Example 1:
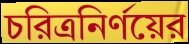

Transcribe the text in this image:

চরিত্রনির্ণয়ের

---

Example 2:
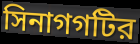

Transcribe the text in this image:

সিনাগগটির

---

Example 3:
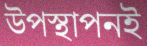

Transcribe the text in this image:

উপস্থাপনই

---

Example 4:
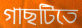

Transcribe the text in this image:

গাছটিতে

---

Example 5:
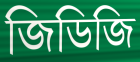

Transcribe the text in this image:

জিডিজি